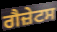
ਗੈਜ਼ੇਟਸ